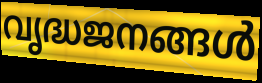
വൃദ്ധജനങ്ങൾ